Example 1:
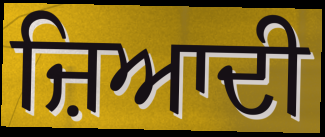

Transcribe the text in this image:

ਜ਼ਿਆਦੀ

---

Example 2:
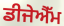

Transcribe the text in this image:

ਡੀਜੇਐੱਮ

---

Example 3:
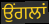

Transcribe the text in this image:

ਉੰਗਲਾਂ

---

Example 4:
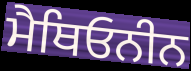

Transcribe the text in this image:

ਮੈਥਿਓਨੀਨ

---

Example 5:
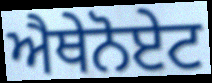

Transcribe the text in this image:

ਐਥੇਨੋਏਟ